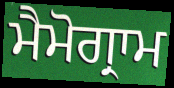
ਮੈਮੋਗ੍ਰਾਮ